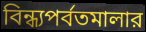
বিন্ধ্যপর্বতমালার